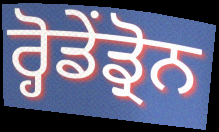
ਰ੍ਹੋਡੇਂਡ੍ਰੋਨ